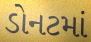
ડોનટમાં